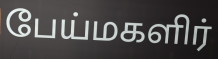
பேய்மகளிர்